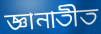
জ্ঞানাতীত